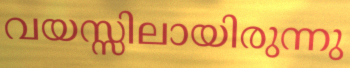
വയസ്സിലായിരുന്നു